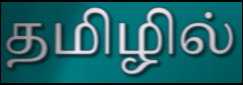
தமிழில்